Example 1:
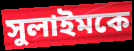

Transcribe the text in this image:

সুলাইমকে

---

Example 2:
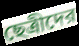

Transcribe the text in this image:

ছেত্রীদের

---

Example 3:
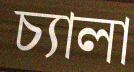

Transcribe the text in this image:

চ্যালা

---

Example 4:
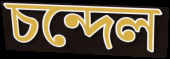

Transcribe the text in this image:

চন্দেল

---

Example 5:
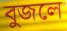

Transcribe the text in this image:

বুজলে